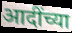
आदींच्या